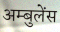
अम्बुलेंस